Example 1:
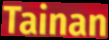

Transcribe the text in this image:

Tainan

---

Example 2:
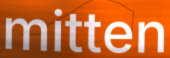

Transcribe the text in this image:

mitten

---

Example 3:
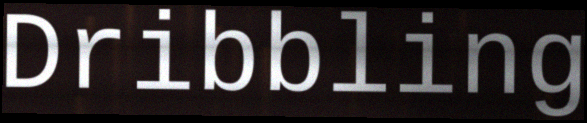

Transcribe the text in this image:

Dribbling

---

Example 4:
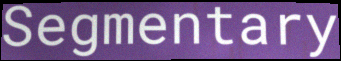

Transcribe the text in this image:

Segmentary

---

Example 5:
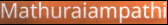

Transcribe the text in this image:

Mathuraiampathi